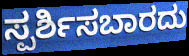
ಸ್ಪರ್ಶಿಸಬಾರದು